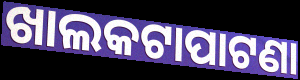
ଖାଲକଟାପାଟଣା